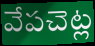
వేపచెట్ల